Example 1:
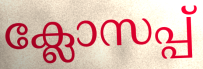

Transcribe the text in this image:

ക്ലോസപ്പ്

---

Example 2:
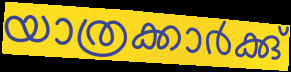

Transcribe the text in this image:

യാത്രക്കാർക്കു്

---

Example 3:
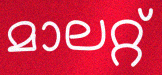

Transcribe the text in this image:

മാലറ്റ്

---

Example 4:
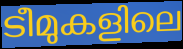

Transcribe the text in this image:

ടീമുകളിലെ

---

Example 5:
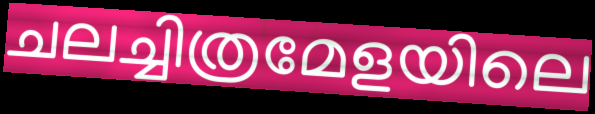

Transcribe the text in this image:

ചലച്ചിത്രമേളയിലെ